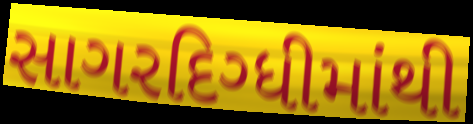
સાગરદિગ્ધીમાંથી